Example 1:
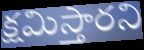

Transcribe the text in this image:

క్షమిస్తారని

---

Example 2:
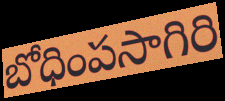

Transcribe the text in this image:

బోధింపసాగిరి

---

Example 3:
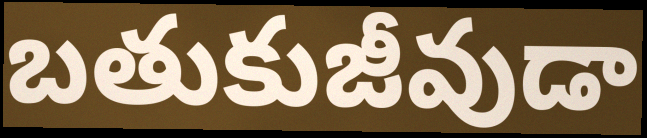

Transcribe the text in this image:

బతుకుజీవుడా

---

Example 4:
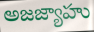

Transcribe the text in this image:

అజజ్యాహు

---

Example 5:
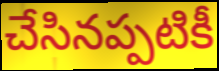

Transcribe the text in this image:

చేసినప్పటికీ